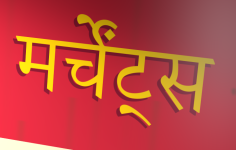
मर्चेंट्स